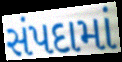
સંપદામાં